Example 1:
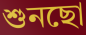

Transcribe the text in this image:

শুনছো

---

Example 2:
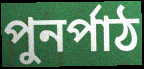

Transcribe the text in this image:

পুনর্পাঠ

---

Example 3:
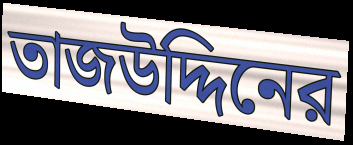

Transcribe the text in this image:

তাজউদ্দিনের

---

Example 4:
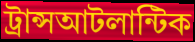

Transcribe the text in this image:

ট্রান্সআটলান্টিক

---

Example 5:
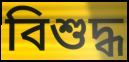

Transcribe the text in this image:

বিশুদ্ধ